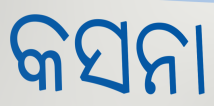
କସନା